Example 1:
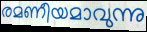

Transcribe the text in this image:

രമണീയമാവുന്നു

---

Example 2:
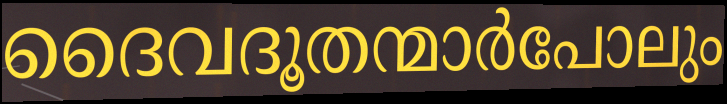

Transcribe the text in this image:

ദൈവദൂതന്മാർപോലും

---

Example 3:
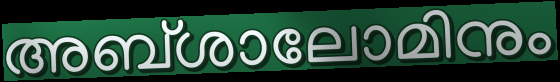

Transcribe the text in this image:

അബ്ശാലോമിനും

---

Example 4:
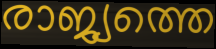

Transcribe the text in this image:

രാജ്യത്തെ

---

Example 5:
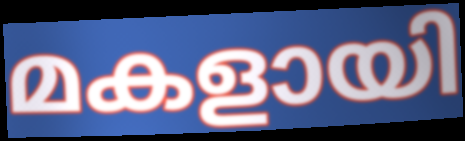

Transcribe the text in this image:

മകളായി